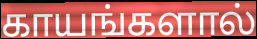
காயங்களால்